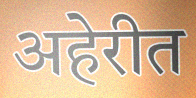
अहेरीत